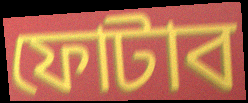
ফোটাব